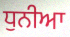
ਧੁਨੀਆ